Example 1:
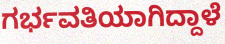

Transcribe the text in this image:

ಗರ್ಭವತಿಯಾಗಿದ್ದಾಳೆ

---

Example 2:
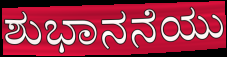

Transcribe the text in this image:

ಶುಭಾನನೆಯು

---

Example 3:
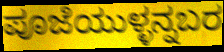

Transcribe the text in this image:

ಪೂಜೆಯುಳ್ಳನ್ನಬರ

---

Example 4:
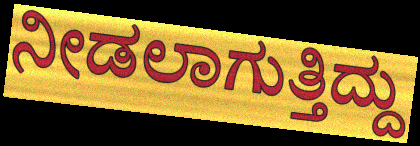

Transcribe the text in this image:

ನೀಡಲಾಗುತ್ತಿದ್ದು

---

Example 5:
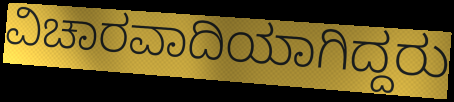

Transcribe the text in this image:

ವಿಚಾರವಾದಿಯಾಗಿದ್ದರು